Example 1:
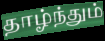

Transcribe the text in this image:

தாழ்ந்தும்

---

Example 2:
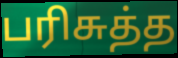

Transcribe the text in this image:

பரிசுத்த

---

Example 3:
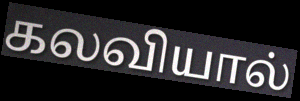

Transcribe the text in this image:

கலவியால்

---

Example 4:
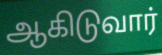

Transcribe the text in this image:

ஆகிடுவார்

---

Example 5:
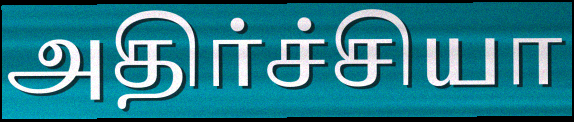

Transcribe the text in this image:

அதிர்ச்சியா